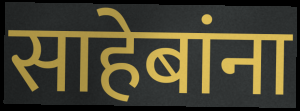
साहेबांना